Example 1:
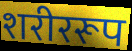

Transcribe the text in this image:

शरीररूप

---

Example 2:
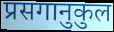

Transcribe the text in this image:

प्रसगानुकुल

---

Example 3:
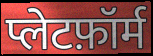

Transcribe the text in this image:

प्लेटफ़ॉर्म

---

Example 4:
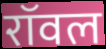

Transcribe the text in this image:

रॉवल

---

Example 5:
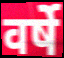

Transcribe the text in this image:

वर्षे